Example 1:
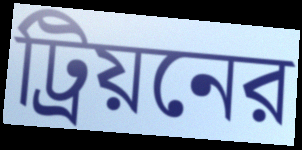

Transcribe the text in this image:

ট্রিয়নের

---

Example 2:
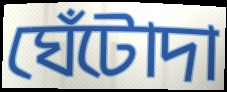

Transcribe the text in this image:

ঘেঁটোদা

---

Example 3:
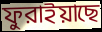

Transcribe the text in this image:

ফুরাইয়াছে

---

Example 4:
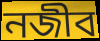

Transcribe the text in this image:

নজীব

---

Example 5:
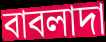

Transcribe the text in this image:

বাবলাদা